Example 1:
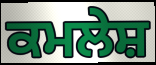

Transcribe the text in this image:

ਕਮਲੇਸ਼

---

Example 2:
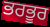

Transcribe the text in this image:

ਭਰਭੂਰ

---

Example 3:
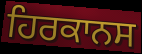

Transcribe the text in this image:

ਹਿਰਕਾਨਸ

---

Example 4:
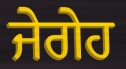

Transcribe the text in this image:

ਜੇਗੇਹ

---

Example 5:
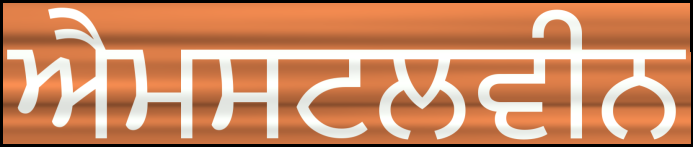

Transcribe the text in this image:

ਐਮਸਟਲਵੀਨ